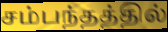
சம்பந்தத்தில்